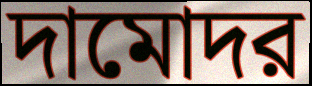
দামোদর